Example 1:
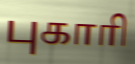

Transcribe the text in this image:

புகாரி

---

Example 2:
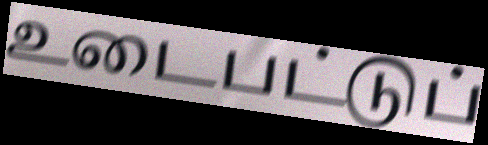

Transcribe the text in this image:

உடைபட்டுப்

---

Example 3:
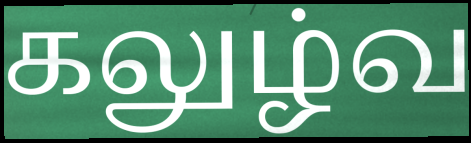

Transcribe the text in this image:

கலுழ்வ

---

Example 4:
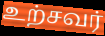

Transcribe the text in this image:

உற்சவர்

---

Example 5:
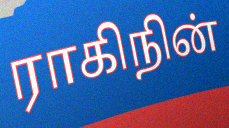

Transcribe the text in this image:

ராகிநின்